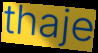
thaje